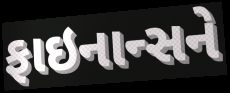
ફાઇનાન્સને